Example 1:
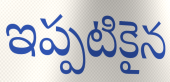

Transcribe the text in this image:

ఇప్పటికైన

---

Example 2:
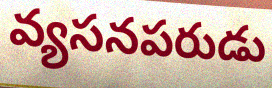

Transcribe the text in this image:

వ్యసనపరుడు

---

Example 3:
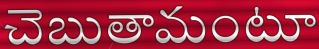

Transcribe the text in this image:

చెబుతామంటూ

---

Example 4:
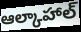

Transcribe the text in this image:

ఆల్కాహాల్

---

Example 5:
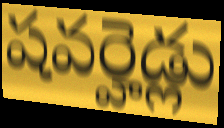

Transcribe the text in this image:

షవర్హెడ్లు